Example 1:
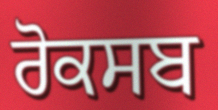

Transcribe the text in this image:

ਰੋਕਸਬ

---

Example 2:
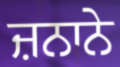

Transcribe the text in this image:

ਜ਼ਨਾਨੇ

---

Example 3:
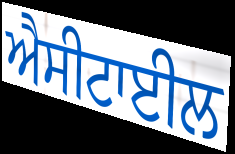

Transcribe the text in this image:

ਐਸੀਟਾਈਲ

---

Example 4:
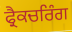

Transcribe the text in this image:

ਫ੍ਰੈਕਚਰਿੰਗ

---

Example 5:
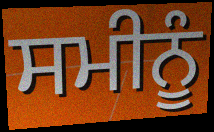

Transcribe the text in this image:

ਸਮੀਨੂੰ